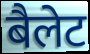
बैलेट